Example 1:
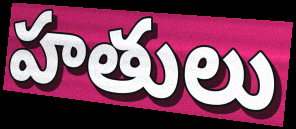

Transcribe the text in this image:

హతులు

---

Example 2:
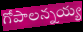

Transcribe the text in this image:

గోపాలన్నయ్య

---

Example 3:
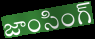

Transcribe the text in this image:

జాంసింగ్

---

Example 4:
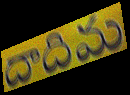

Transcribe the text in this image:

దాదిమ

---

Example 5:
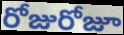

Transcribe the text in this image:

రోజురోజూ